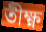
তীক্ষ্ণ